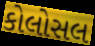
કોલોસલ